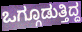
ಒಗ್ಗೂಡುತ್ತಿದ್ದ